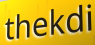
thekdi